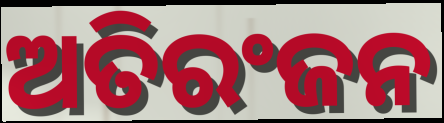
ଅତିରଂଜନ